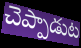
చెప్పాడుట